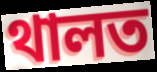
থালত